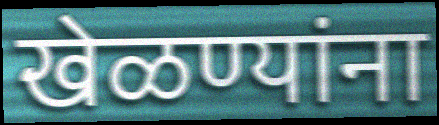
खेळण्यांना